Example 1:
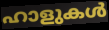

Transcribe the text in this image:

ഹാളുകൾ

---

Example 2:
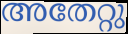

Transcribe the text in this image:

അതേറ്റു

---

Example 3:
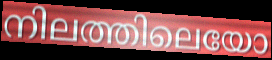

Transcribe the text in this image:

നിലത്തിലെയോ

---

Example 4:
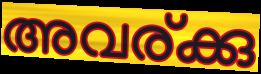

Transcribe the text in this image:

അവര്ക്കു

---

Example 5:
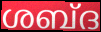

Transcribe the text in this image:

ശബ്‌ദ